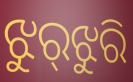
ଝୁର୍‌ଝୁରି